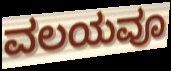
ವಲಯವೂ